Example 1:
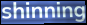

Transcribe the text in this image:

shinning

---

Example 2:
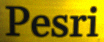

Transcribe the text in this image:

Pesri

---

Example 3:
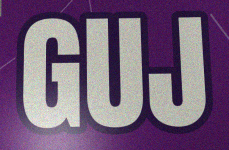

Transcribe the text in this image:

GUJ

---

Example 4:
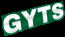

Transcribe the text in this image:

GYTS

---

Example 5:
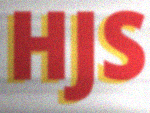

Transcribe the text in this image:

HJS